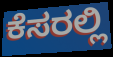
ಕೆಸರಲ್ಲಿ